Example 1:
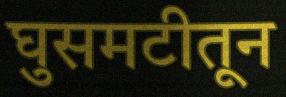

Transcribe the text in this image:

घुसमटीतून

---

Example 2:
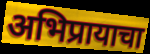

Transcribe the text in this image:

अभिप्रायाचा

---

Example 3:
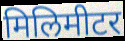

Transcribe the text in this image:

मिलिमीटर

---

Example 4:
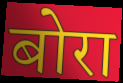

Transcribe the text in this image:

बोरा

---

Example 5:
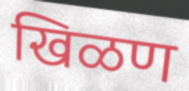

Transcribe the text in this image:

खिळण